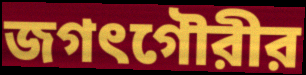
জগৎগৌরীর